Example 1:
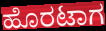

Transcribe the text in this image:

ಹೊರಟಾಗ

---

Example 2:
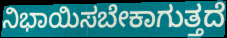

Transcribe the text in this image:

ನಿಭಾಯಿಸಬೇಕಾಗುತ್ತದೆ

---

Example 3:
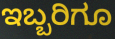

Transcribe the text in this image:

ಇಬ್ಬರಿಗೂ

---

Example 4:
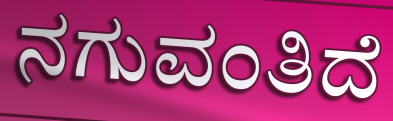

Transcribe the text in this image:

ನಗುವಂತಿದೆ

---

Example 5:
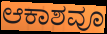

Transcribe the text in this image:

ಆಕಾಶವೂ